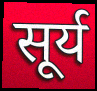
सूर्य